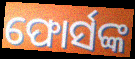
ଫୋର୍ସଙ୍କ